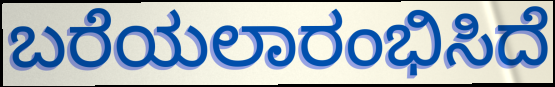
ಬರೆಯಲಾರಂಭಿಸಿದೆ